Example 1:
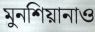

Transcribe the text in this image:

মুনশিয়ানাও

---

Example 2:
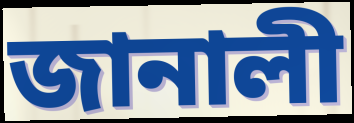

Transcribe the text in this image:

জানালী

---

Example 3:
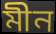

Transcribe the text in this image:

মীন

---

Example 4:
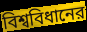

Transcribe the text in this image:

বিশ্ববিধানের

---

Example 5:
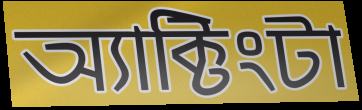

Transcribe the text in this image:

অ্যাক্টিংটা